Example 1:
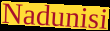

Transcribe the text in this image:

Nadunisi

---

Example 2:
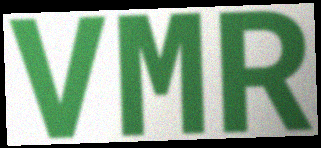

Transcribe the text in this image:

VMR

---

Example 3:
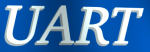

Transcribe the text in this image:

UART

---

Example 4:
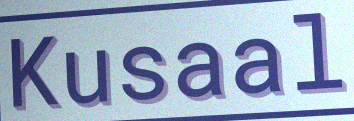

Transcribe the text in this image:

Kusaal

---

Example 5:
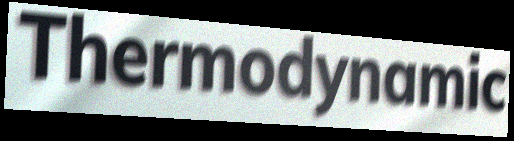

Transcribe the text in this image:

Thermodynamic